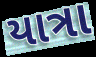
યાત્રા